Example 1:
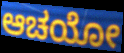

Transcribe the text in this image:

ಆಚಯೋ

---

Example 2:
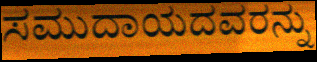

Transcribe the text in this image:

ಸಮುದಾಯದವರನ್ನು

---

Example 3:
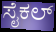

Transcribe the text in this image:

ಸೈಕಲ್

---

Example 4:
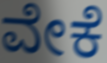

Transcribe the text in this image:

ವೇಕೆ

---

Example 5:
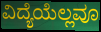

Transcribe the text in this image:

ವಿದ್ಯೆಯೆಲ್ಲವೂ